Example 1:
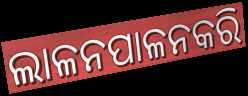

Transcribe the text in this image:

ଲାଳନପାଳନକରି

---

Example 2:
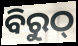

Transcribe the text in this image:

ବିରୁଠ୍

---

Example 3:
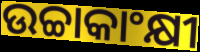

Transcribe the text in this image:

ଉଚ୍ଚାକାଂକ୍ଷୀ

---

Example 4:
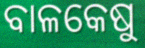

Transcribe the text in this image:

ବାଳକେଷୁ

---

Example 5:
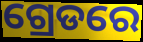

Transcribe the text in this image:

ଗ୍ରେଡରେ